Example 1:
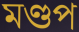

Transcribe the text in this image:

মণ্ডপ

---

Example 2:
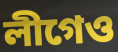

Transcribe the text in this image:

লীগেও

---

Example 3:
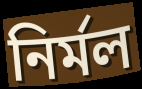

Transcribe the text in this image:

নিৰ্মল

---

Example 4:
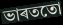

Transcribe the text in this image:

ভাৰততো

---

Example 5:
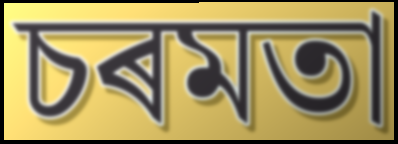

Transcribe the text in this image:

চৰমতা